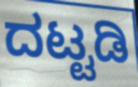
ದಟ್ಟಡಿ